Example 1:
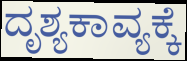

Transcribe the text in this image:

ದೃಶ್ಯಕಾವ್ಯಕ್ಕೆ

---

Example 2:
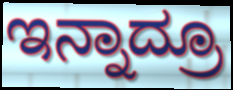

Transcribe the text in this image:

ಇನ್ನಾದ್ರೂ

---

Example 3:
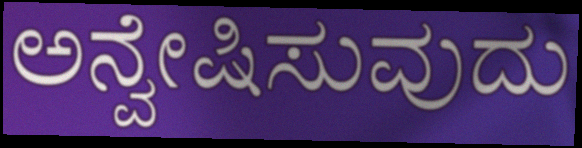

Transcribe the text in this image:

ಅನ್ವೇಷಿಸುವುದು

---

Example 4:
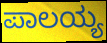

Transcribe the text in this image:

ಪಾಲಯ್ಯ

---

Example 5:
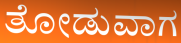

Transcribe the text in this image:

ತೋಡುವಾಗ